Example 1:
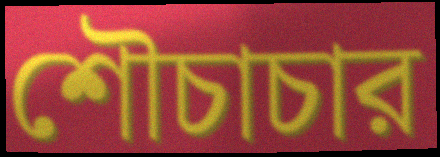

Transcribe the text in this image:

শৌচাচার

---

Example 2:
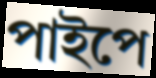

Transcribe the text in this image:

পাইপে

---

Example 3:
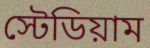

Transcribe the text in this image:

স্টেডিয়াম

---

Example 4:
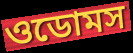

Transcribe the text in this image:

ওডোমস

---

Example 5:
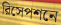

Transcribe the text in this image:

রিসেপশনে